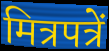
मित्रपत्रें